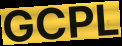
GCPL